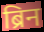
ब्रिन